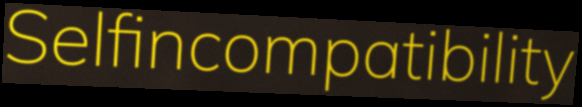
Selfincompatibility